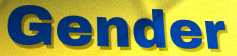
Gender